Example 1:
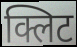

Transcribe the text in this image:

क्लिट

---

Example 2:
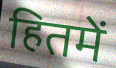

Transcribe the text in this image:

हितमें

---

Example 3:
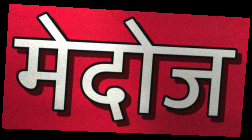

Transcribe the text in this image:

मेदोज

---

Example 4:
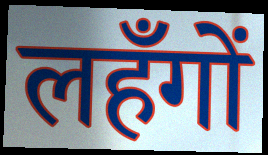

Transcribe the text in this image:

लहँगों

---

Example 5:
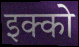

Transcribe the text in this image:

इक्को